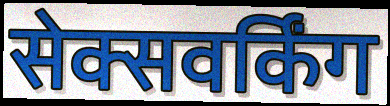
सेक्सवर्किंग